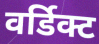
वर्डिक्ट